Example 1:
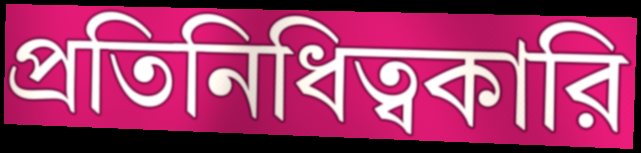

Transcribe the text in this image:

প্রতিনিধিত্বকারি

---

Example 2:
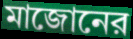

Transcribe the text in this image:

মাজোনের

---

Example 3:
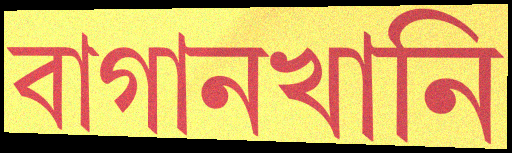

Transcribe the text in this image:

বাগানখানি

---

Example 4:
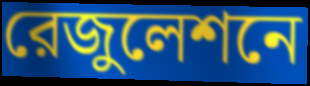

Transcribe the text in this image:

রেজুলেশনে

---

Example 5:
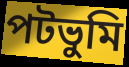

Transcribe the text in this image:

পটভুমি